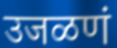
उजळणं